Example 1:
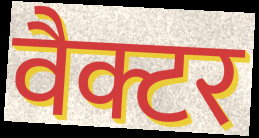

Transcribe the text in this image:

वैक्टर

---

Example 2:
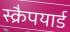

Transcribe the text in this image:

स्क्रैपयार्ड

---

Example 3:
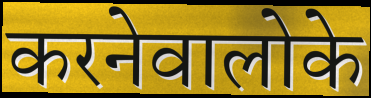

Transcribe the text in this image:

करनेवालोके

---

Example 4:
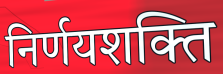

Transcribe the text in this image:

निर्णयशक्ति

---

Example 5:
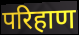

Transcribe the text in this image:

परिहाण